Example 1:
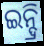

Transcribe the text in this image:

ଇନ୍ଦ୍ରି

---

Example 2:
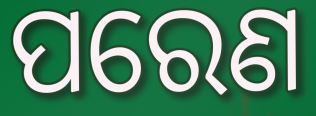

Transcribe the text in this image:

ପରେଣ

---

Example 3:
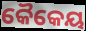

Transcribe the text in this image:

କୈକେୟ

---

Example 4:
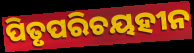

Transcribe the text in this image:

ପିତୃପରିଚୟହୀନ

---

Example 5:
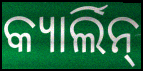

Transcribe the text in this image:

କ୍ୟାର୍ଲିନ୍